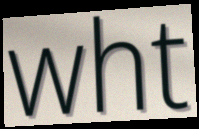
wht